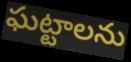
ఘట్టాలను